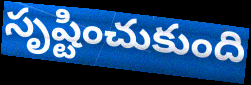
సృష్టించుకుంది